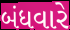
બંધવારે